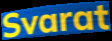
Svarat